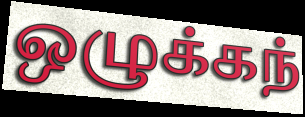
ஒழுக்கந்